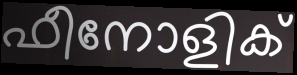
ഫീനോളിക്